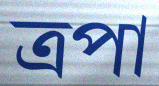
ত্রপা